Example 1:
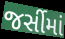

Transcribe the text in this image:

જર્સીમાં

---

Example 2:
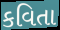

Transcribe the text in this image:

કવિતા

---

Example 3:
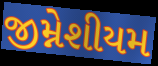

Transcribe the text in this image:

જીમ્નેશીયમ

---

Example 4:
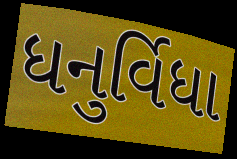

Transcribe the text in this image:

ધનુર્વિધા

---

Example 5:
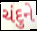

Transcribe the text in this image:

ચંદુને